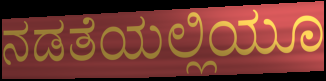
ನಡತೆಯಲ್ಲಿಯೂ